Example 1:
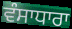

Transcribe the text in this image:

ਵੰਸਾਧਾਰਾ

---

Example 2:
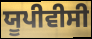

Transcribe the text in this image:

ਯੂਪੀਵੀਸੀ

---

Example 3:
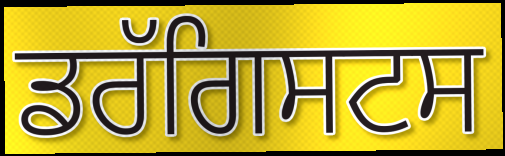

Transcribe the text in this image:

ਡਰੱਗਿਸਟਸ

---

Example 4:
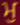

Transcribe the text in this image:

ਮੁ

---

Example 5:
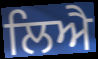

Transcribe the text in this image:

ਲਿਐ